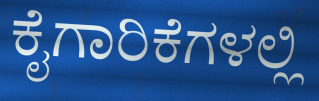
ಕೈಗಾರಿಕೆಗಳಲ್ಲಿ